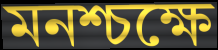
মনশ্চক্ষে